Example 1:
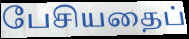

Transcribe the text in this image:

பேசியதைப்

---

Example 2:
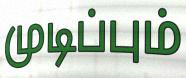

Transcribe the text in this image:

முடிப்பும்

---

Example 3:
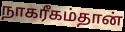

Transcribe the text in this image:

நாகரீகம்தான்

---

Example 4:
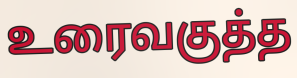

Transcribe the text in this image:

உரைவகுத்த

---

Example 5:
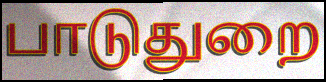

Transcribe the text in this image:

பாடுதுறை